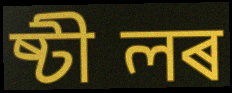
ষ্টীলৰ